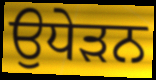
ਉਧੇੜਨ